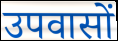
उपवासों